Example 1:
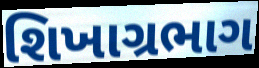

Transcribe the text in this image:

શિખાગ્રભાગ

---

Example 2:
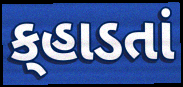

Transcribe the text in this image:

ક્‌હાડતાં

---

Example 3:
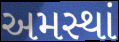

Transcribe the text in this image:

અમસ્થાં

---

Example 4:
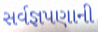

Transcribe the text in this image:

સર્વજ્ઞપણાની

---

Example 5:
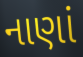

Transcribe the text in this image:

નાણાં